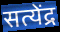
सत्येंद्र